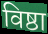
विष्ठा